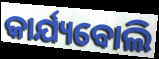
କାର୍ଯ୍ୟବୋଲି